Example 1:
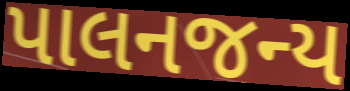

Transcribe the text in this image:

પાલનજન્ય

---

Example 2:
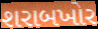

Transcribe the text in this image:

શરાબખોર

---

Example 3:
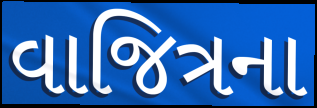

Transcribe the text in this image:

વાજિત્રના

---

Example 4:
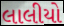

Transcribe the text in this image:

લાલીયો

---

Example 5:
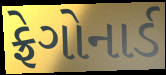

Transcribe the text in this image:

ફ્રેગોનાર્ડ